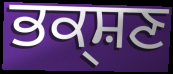
ਭਕ੍ਸ਼ਣ